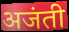
अजंती